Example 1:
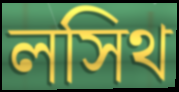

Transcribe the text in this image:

লসিথ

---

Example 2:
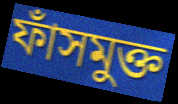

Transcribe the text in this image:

ফাঁসমুক্ত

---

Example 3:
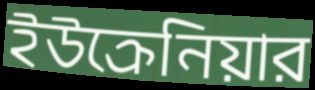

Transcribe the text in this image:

ইউক্রেনিয়ার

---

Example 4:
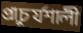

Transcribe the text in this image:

প্রাচুর্যশালী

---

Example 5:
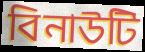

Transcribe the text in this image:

বিনাউটি